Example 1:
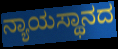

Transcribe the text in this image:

ನ್ಯಾಯಸ್ಥಾನದ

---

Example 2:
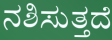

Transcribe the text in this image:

ನಶಿಸುತ್ತದೆ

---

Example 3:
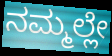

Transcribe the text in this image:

ನಮ್ಮಲ್ಲೇ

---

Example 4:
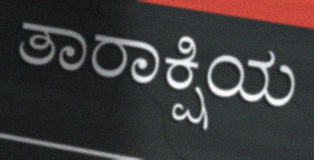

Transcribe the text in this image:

ತಾರಾಕ್ಷಿಯ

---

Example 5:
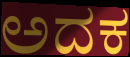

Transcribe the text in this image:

ಅದಕ